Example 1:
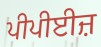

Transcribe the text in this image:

ਪੀਪੀਈਜ਼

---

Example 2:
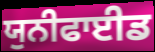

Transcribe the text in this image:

ਯੁਨੀਫਾਈਡ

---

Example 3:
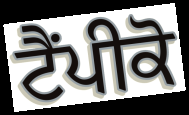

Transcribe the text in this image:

ਟੈਂਪੀਕੋ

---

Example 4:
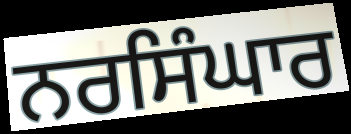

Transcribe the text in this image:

ਨਰਸਿੰਘਾਰ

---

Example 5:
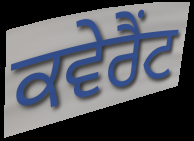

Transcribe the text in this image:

ਕਵੇਰੈਂਟ